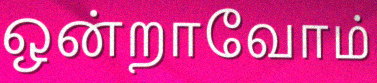
ஒன்றாவோம்